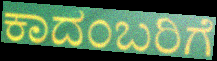
ಕಾದಂಬರಿಗೆ